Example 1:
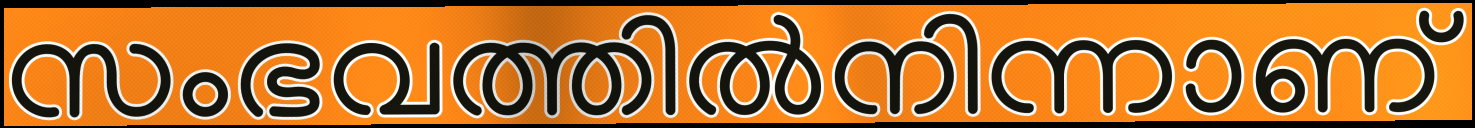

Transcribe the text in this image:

സംഭവത്തിൽനിന്നാണ്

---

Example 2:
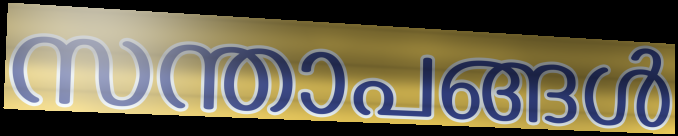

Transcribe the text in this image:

സന്താപങ്ങൾ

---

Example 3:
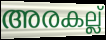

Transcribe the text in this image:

അരകല്ല്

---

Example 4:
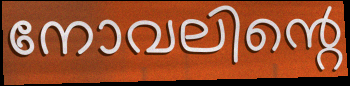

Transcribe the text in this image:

നോവലിന്റെ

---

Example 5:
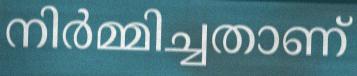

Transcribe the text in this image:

നിർമ്മിച്ചതാണ്